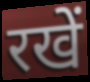
रखें